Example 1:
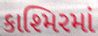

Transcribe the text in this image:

કાશ્મિરમાં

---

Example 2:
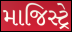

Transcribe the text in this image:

માજિસ્ટ્રે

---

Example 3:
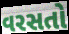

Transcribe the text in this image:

વરસતો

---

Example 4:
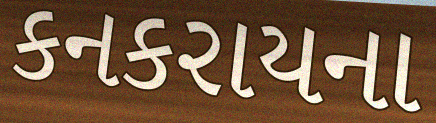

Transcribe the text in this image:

કનકરાયના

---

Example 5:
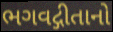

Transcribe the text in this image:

ભગવદ્ગીતાનો